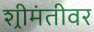
श्रीमंतीवर